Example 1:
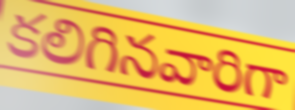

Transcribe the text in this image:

కలిగినవారిగా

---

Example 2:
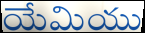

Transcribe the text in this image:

యేమియు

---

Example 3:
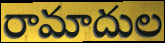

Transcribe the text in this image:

రామాదుల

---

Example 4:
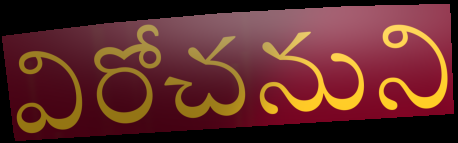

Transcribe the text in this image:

విరోచనుని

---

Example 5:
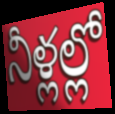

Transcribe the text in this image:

నీళ్లల్లో